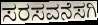
ಸರಸವನೆಸಗಿ